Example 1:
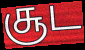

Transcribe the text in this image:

சூட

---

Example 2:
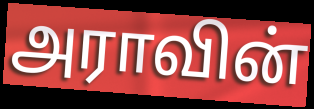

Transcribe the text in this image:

அராவின்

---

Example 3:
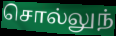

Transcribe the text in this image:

சொல்லுந்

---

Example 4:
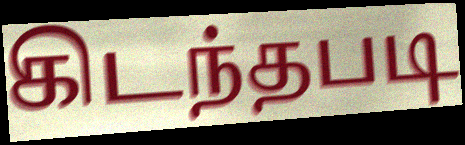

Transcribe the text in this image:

கிடந்தபடி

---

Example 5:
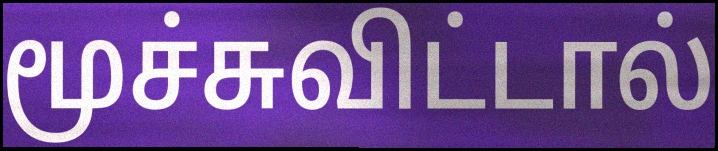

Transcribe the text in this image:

மூச்சுவிட்டால்